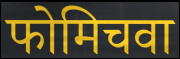
फोमिचवा